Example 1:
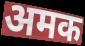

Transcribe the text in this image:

अमक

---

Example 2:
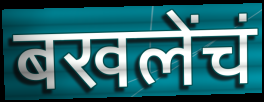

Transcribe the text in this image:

बखलेंचं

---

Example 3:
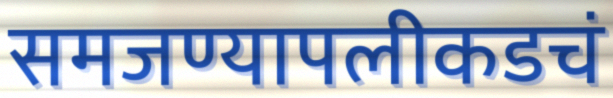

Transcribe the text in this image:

समजण्यापलीकडचं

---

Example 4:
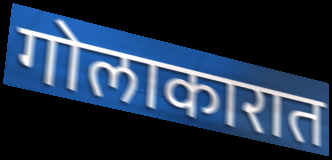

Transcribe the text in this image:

गोलाकारात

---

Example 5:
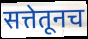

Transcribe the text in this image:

सत्तेतूनच